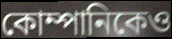
কোম্পানিকেও